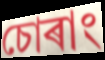
চোৰাং